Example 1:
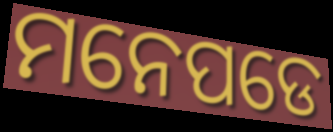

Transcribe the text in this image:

ମନେପଡେ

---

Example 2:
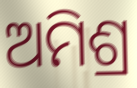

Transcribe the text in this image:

ଅମିଶ୍ର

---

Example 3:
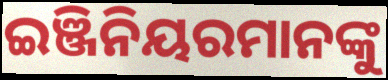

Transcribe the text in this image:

ଇଞ୍ଜିନିୟରମାନଙ୍କୁ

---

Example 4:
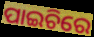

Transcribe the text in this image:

ପାଇଚିରେ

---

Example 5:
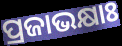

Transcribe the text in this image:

ପ୍ରଜାଭକ୍ଷାଃ